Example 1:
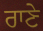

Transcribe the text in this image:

ਰਾਣੇ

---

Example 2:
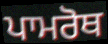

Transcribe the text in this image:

ਪਾਮਰੋਥ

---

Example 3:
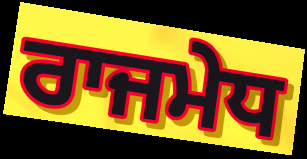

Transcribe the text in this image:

ਰਾਜਮੇਧ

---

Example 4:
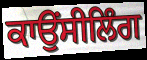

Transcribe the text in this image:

ਕਾਉਂਸੀਲਿੰਗ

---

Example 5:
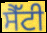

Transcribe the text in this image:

ਸੈੱਟੀ